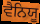
ਵੈਨਿਯੂ